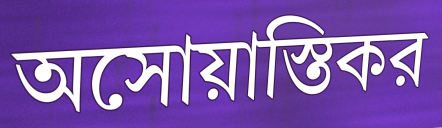
অসোয়াস্তিকর